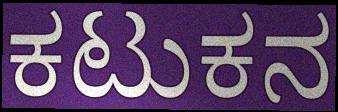
ಕಟುಕನ